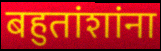
बहुतांशांना